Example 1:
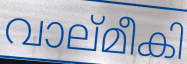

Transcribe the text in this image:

വാല്മീകി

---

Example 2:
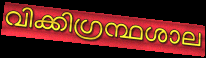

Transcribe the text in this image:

വിക്കിഗ്രന്ഥശാല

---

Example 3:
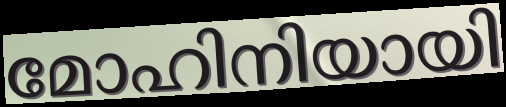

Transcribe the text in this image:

മോഹിനിയായി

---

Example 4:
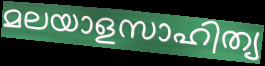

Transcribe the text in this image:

മലയാളസാഹിത്യ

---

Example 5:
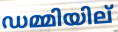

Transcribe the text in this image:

ഡമ്മിയില്